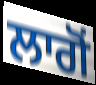
ਲਾਗੋਂ